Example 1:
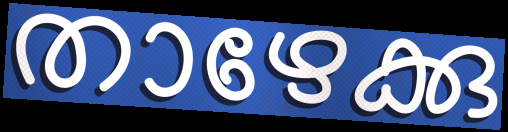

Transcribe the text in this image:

താഴേക്കു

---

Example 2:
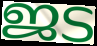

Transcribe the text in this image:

ജട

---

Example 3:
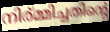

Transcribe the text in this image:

നിര്മ്മിച്ചതിന്റെ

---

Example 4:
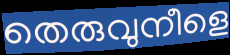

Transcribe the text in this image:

തെരുവുനീളെ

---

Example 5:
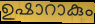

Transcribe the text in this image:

ഉഷാറാകും